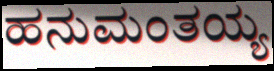
ಹನುಮಂತಯ್ಯ